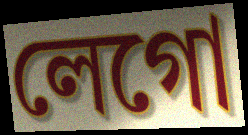
লেগো